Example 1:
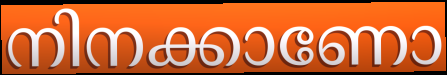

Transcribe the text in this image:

നിനക്കാണോ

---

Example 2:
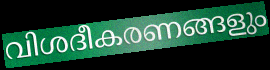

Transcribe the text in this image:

വിശദീകരണങ്ങളും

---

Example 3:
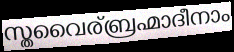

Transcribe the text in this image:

സ്തവൈര്ബ്രഹ്മാദീനാം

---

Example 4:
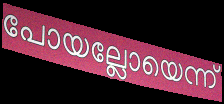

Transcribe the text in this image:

പോയല്ലോയെന്ന്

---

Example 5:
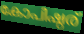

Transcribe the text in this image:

കോപിഷ്ഠര്